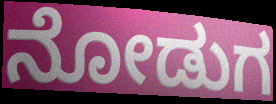
ನೋಡುಗ